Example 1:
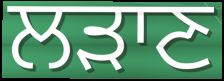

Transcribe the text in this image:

ਲੜਾਣ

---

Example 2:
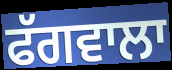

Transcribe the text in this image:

ਫੱਗਵਾਲਾ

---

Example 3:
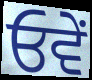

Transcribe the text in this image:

ਓਵੇਂ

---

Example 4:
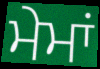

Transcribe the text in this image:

ਮੇਮਾਂ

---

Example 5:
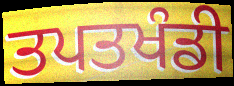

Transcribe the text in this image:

ਤਪਤਖੰਡੀ